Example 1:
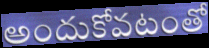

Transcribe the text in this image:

అందుకోవటంతో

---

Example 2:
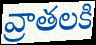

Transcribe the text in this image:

వ్రాతలకి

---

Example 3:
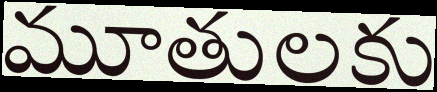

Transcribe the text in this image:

మూతులకు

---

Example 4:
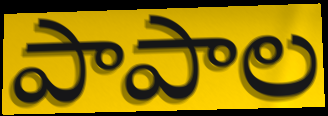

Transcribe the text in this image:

పాపాల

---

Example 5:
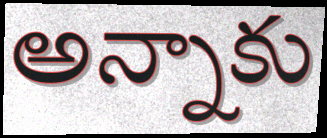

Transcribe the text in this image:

అన్నాకు